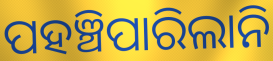
ପହଞ୍ଚିପାରିଲାନି